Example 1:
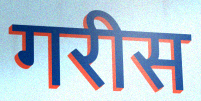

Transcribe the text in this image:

गरीस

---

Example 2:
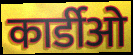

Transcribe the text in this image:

कार्डीओ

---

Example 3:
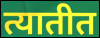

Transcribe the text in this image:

त्यातीत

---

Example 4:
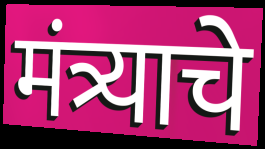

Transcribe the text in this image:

मंत्र्याचे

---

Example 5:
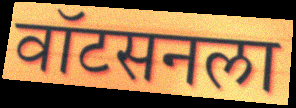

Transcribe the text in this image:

वॉटसनला